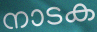
നാടക